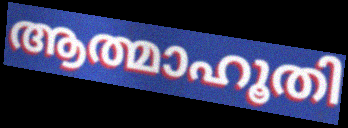
ആത്മാഹൂതി